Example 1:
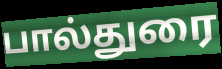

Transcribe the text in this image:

பால்துரை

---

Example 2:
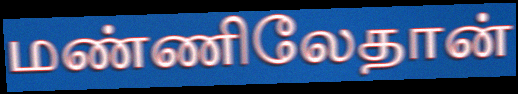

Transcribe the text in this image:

மண்ணிலேதான்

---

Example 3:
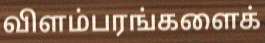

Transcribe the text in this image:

விளம்பரங்களைக்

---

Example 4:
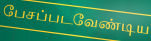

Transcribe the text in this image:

பேசப்படவேண்டிய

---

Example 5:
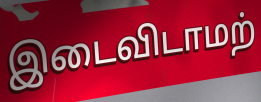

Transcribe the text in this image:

இடைவிடாமற்